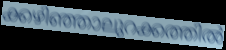
ക്കഴിഞ്ഞാലുറക്കത്തിൽ